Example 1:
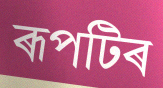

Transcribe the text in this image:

ৰূপটিৰ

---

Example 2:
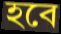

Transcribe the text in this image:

হবে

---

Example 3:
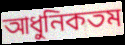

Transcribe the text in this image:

আধুনিকতম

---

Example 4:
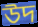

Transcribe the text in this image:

উদ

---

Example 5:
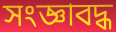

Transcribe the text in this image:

সংজ্ঞাবদ্ধ